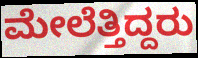
ಮೇಲೆತ್ತಿದ್ದರು